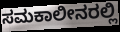
ಸಮಕಾಲೀನರಲ್ಲಿ